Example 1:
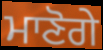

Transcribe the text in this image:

ਮਾਣੋਗੇ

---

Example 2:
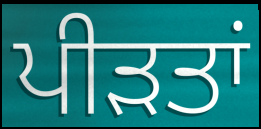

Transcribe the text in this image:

ਪੀਡ਼ਤਾਂ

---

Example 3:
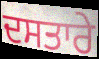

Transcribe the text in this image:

ਦਸਤਾਰੇ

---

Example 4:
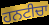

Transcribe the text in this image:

ਹਨਟੀਚਾ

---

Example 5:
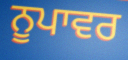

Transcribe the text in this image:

ਨੂਪਾਵਰ